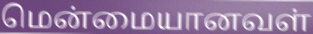
மென்மையானவள்